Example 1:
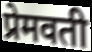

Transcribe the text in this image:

प्रेमवती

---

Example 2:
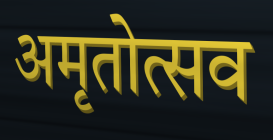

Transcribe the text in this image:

अमृतोत्सव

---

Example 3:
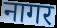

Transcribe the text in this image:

नागर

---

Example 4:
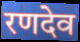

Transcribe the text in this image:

रणदेव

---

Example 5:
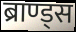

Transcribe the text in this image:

ब्राण्‍ड्स